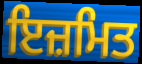
ਇਜ਼ਮਿਤ